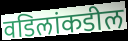
वडिलांकडील